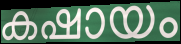
കഷായം